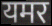
यमर